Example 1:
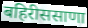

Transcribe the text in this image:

बहिरीससाणा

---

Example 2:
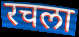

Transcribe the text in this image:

रचला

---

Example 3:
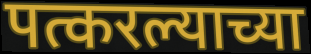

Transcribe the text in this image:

पत्करल्याच्या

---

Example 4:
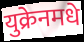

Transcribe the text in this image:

युक्रेनमधे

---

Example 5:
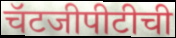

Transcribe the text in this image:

चॅटजीपीटीची